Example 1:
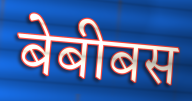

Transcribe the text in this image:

बेबीबस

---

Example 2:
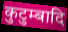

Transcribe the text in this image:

कुटुम्बादि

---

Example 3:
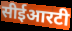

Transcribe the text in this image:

सीईआरटी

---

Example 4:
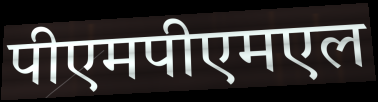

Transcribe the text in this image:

पीएमपीएमएल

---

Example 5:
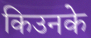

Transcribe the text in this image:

किउनके